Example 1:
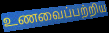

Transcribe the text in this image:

உணவைப்பற்றிய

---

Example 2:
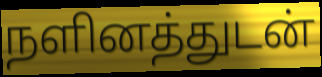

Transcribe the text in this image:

நளினத்துடன்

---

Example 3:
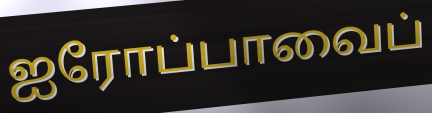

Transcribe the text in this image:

ஐரோப்பாவைப்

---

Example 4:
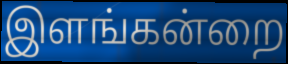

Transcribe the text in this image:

இளங்கன்றை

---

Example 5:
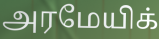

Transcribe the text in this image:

அரமேயிக்